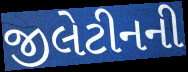
જીલેટીનની